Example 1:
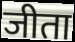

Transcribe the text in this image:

जीता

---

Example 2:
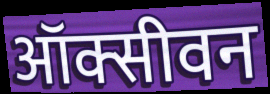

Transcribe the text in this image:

ऑक्सीवन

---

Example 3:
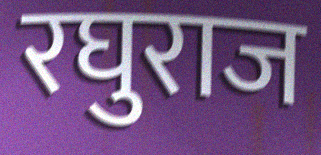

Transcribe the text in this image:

रघुराज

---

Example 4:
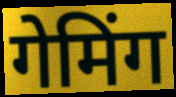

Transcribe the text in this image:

गेमिंग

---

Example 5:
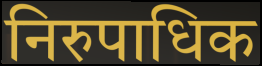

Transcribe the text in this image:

निरुपाधिक